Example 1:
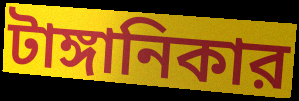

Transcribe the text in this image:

টাঙ্গানিকার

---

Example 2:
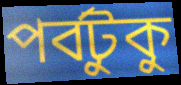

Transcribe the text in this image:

পর্বটুকু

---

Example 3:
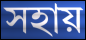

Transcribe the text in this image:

সহায়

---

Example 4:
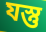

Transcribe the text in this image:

যস্তু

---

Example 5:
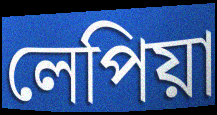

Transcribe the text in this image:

লেপিয়া